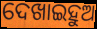
ଦେଖାଇହୁଅ